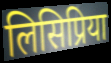
लिसिप्रिया